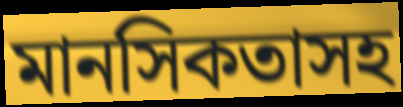
মানসিকতাসহ